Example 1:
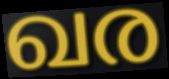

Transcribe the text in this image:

ഖര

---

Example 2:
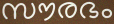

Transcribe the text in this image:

സൗരഭം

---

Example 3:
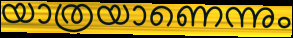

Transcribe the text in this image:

യാത്രയാണെന്നും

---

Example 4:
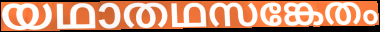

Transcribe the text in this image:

യഥാതഥസങ്കേതം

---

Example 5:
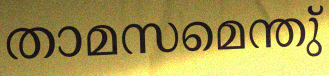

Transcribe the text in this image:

താമസമെന്തു്